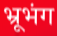
भ्रूभंग